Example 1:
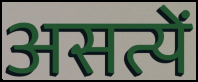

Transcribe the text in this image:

असत्यें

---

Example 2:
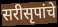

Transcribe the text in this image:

सरीसृपांचे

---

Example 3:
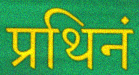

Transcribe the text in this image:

प्रथिनं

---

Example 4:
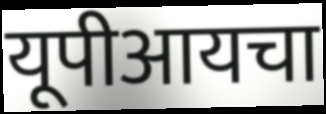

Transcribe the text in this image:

यूपीआयचा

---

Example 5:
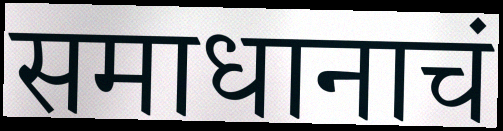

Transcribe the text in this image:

समाधानाचं